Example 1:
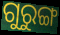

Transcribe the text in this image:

ଗୁରୁଙ୍ଗ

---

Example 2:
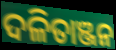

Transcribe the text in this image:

ଦଳିତାଞ୍ଜନ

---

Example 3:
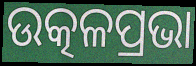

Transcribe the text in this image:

ଉତ୍କଳପ୍ରଭା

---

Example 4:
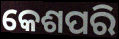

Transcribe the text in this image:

କେଶପରି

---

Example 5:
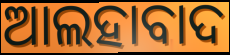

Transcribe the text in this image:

ଆଲହାବାଦ